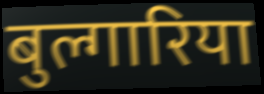
बुल्गारिया